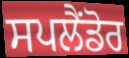
ਸਪਲੈਂਡੋਰ